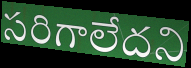
సరిగాలేదని